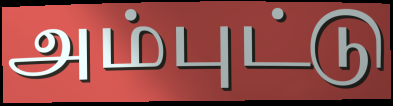
அம்புட்டு